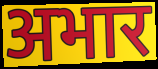
अभार